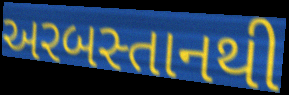
અરબસ્તાનથી